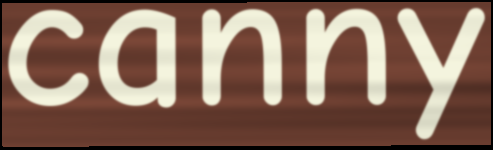
canny